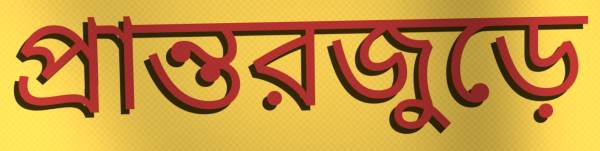
প্রান্তরজুড়ে